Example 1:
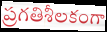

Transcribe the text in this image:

ప్రగతిశీలకంగా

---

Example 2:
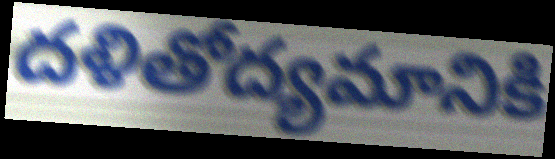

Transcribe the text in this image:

దళితోద్యమానికి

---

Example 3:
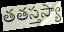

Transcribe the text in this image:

తతస్తస్యా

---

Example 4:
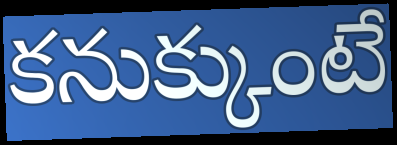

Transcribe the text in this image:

కనుక్కుంటే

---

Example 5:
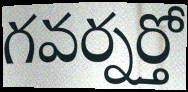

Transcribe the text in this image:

గవర్నర్తో